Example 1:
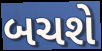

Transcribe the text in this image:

બચશે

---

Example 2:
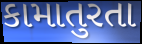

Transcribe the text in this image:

કામાતુરતા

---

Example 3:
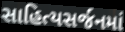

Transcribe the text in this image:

સાહિત્યસર્જનમાં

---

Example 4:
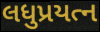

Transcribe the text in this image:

લધુપ્રયત્ન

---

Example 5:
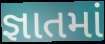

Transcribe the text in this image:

જ્ઞાતમાં